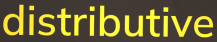
distributive